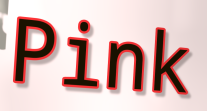
Pink